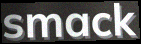
smack